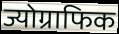
ज्योग्राफिक